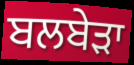
ਬਲਬੇਡ਼ਾ